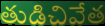
తుడిచివేత